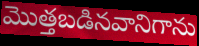
మొత్తబడినవానిగాను